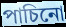
পাচিনো